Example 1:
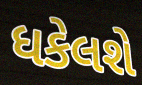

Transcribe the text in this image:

ધકેલશે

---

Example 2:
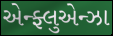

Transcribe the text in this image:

એન્ફ્લુએન્ઝા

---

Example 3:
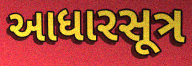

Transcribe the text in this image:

આધારસૂત્ર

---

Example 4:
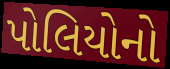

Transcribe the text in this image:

પોલિયોનો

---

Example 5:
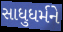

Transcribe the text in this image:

સાધુધર્મને